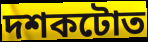
দশকটোত